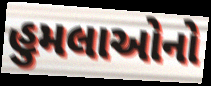
હુમલાઓનો